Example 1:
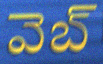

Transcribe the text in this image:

వెబ్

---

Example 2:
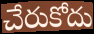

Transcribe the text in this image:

చేరుకోదు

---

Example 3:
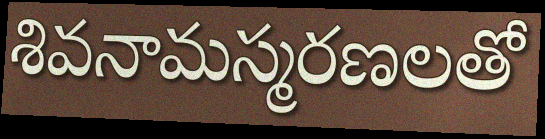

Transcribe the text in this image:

శివనామస్మరణలతో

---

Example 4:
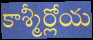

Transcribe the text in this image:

కాశ్మీర్లోయ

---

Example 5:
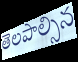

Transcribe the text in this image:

తెలపాల్సిన